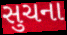
સુચના